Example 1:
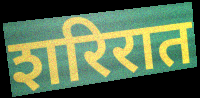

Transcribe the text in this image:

शरिरात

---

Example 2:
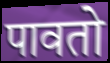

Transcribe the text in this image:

पावतो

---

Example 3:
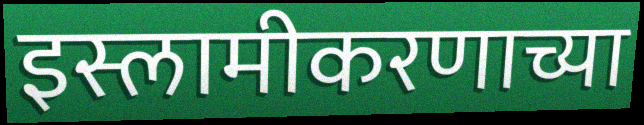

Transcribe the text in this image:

इस्लामीकरणाच्या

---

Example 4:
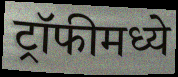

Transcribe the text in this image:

ट्रॉफीमध्ये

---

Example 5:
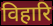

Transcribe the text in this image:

विहारि